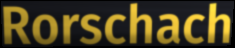
Rorschach